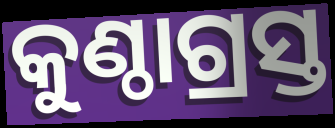
କୁଣ୍ଠାଗ୍ରସ୍ତ